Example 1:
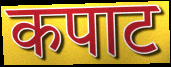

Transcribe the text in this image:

कपाट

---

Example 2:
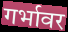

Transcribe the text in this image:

गर्भावर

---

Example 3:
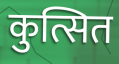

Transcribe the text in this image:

कुत्सित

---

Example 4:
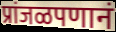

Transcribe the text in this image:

प्रांजळपणानं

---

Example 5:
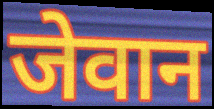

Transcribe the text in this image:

जेवान